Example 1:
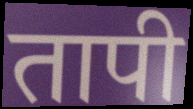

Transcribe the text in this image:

तापी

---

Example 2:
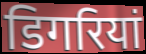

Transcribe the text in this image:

डिगरियां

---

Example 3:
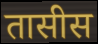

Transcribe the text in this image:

तासीस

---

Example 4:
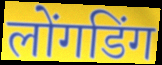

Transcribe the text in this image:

लोंगडिंग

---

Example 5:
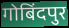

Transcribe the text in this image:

गोबिंदपुर